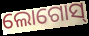
ଲୋଗୋସ୍